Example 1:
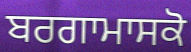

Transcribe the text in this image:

ਬਰਗਾਮਾਸਕੋ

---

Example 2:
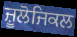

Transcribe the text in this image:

ਜ਼ੂਲੋਜਿਕਲ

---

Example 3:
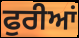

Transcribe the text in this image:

ਫੁਰੀਆਂ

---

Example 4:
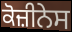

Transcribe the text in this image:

ਕੋਜ਼ੀਨੇਸ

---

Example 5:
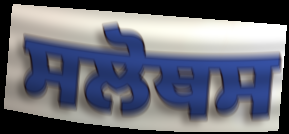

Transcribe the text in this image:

ਸਲੋਥਸ